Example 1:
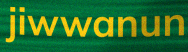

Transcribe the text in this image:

jiwwanun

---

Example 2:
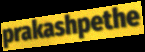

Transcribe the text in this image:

prakashpethe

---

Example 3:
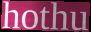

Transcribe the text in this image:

hothu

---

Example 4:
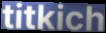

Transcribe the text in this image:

titkich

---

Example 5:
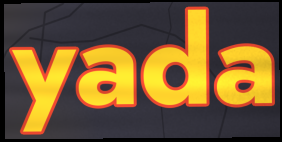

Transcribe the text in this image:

yada